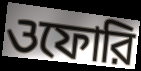
ওফোরি